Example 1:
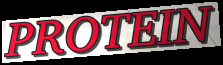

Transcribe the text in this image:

PROTEIN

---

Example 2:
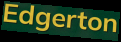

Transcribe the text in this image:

Edgerton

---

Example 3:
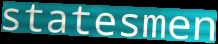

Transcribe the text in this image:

statesmen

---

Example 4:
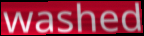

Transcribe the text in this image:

washed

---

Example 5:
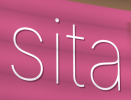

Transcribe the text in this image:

sita